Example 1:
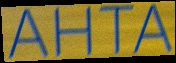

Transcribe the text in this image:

AHTA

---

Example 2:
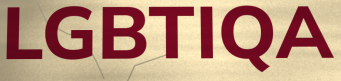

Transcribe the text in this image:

LGBTIQA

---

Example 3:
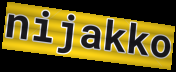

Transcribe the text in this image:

nijakko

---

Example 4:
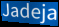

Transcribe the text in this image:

Jadeja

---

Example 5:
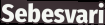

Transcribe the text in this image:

Sebesvari